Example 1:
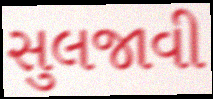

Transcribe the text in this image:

સુલજાવી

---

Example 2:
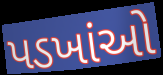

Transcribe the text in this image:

પડખાંઓ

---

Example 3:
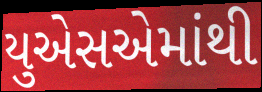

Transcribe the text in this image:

યુએસએમાંથી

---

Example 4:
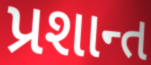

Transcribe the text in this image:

પ્રશાન્ત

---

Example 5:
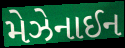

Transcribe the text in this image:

મેઝેનાઈન